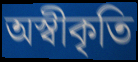
অস্বীকৃতি